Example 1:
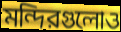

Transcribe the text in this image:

মন্দিরগুলোও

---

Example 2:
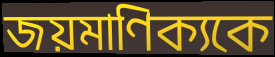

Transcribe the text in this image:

জয়মাণিক্যকে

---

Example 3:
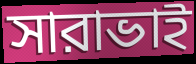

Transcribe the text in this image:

সারাভাই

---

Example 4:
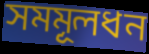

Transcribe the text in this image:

সমমূলধন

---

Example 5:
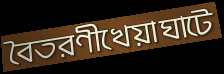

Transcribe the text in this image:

বৈতরণীখেয়াঘাটে